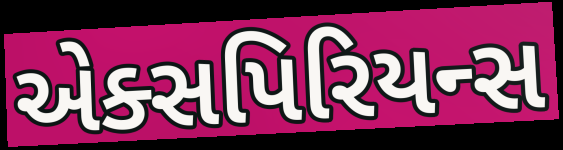
એક્સપિરિયન્સ